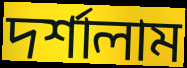
দর্শালাম